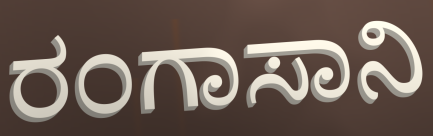
ರಂಗಾಸಾನಿ